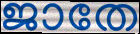
ജാതേ